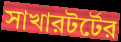
সাখারটর্টের